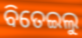
ବିତେଇଲୁ